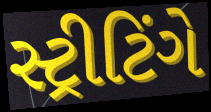
સ્ટ્રીટિંગે